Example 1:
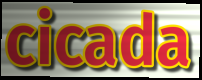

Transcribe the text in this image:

cicada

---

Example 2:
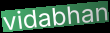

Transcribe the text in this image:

vidabhan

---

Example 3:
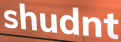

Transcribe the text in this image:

shudnt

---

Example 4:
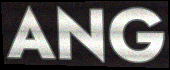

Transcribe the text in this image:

ANG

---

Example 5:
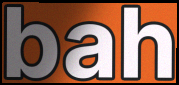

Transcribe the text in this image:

bah